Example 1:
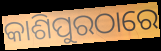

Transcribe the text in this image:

କାଶିପୁରଠାରେ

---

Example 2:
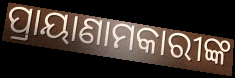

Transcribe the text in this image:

ପ୍ରାୟାଣାମକାରୀଙ୍କ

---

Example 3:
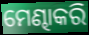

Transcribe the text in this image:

ମେଣ୍ଢାକରି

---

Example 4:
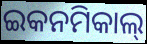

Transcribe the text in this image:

ଇକନମିକାଲ୍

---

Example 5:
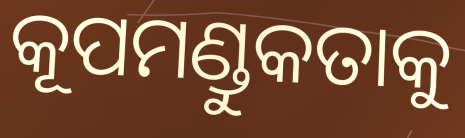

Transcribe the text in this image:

କୂପମଣ୍ଡୁକତାକୁ